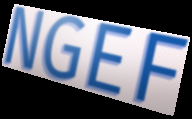
NGEF